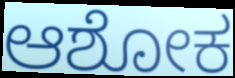
ಆಶೋಕ